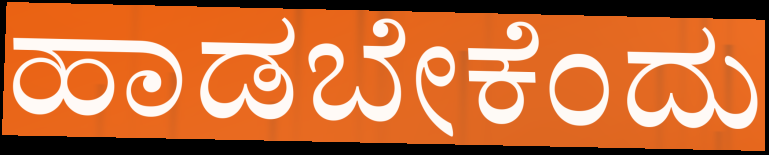
ಹಾಡಬೇಕೆಂದು